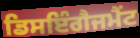
ਡਿਸਇੰਗੈਜਮੈਂਟ